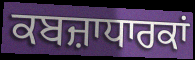
ਕਬਜ਼ਾਧਾਰਕਾਂ